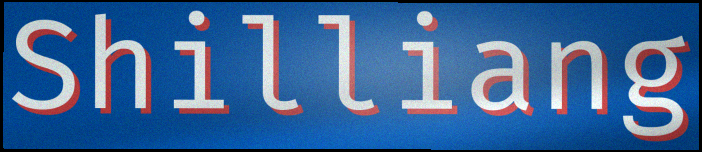
Shilliang